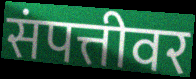
संपत्तीवर